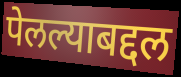
पेलल्याबद्दल